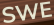
SWE